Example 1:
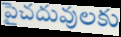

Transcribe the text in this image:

పైచదువులకు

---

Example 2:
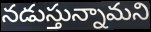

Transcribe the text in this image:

నడుస్తున్నామని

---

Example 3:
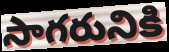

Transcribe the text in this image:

సాగరునికి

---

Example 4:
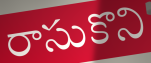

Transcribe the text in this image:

రాసుకొని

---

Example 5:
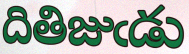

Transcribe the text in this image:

దితిజుఁడు